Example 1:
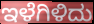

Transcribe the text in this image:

ಇಳೆಗಿಳಿದು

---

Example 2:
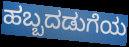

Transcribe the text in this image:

ಹಬ್ಬದಡುಗೆಯ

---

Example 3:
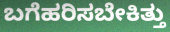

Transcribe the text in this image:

ಬಗೆಹರಿಸಬೇಕಿತ್ತು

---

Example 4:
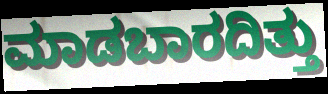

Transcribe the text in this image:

ಮಾಡಬಾರದಿತ್ತು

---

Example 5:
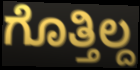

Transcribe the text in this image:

ಗೊತ್ತಿಲ್ದ